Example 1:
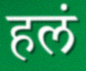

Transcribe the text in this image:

हलं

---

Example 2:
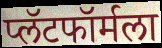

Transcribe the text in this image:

प्लॅटफॉर्मला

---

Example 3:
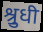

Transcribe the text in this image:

श्रु॒धी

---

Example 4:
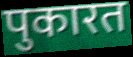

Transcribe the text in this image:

पुकारत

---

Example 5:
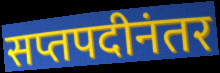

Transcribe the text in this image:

सप्तपदीनंतर